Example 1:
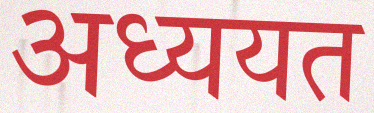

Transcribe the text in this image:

अध्ययत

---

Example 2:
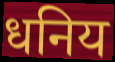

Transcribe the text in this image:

धनिय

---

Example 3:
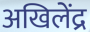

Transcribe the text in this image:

अखिलेंद्र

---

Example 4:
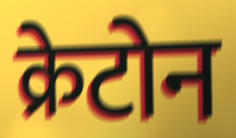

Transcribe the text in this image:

क्रेटोन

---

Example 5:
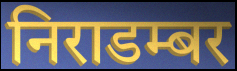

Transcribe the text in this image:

निराडम्बर